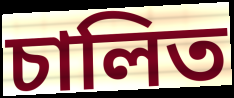
চালিত